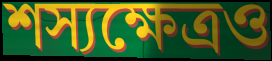
শস্যক্ষেত্রও